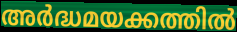
അർദ്ധമയക്കത്തിൽ